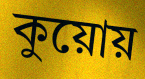
কুয়োয়